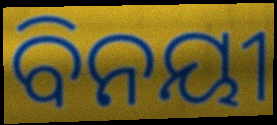
ବିନୟୀ